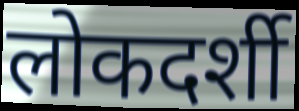
लोकदर्शी